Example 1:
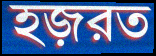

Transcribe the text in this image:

হজ়রত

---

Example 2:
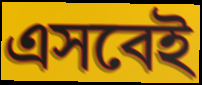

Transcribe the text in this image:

এসবেই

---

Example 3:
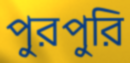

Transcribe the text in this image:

পুরপুরি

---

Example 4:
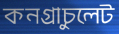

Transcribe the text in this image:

কনগ্রাচুলেট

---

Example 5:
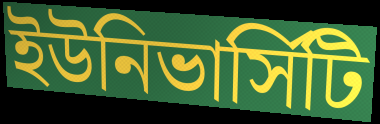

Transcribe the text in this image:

ইউনিভার্সিটি